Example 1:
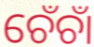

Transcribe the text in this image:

ଚେଁଚାଁ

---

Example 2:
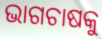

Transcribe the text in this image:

ଭାଗଚାଷକୁ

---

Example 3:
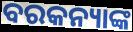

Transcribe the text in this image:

ବରକନ୍ୟାଙ୍କ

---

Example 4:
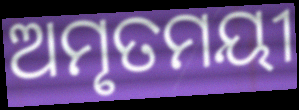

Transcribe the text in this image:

ଅମୃତମୟୀ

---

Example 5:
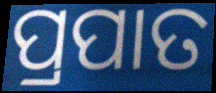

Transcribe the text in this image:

ପ୍ରପାତ